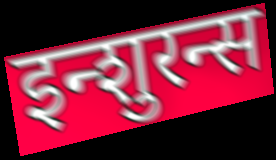
इन्शुरन्स